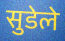
सुडेले